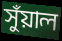
সুঁয়াল